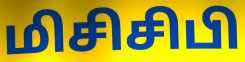
மிசிசிபி